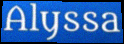
Alyssa